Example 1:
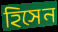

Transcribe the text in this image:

হিসেন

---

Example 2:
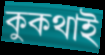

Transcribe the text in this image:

কুকথাই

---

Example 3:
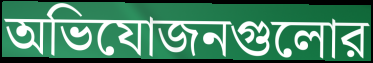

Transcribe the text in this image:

অভিযোজনগুলোর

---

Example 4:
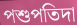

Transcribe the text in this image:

পশুপতিদা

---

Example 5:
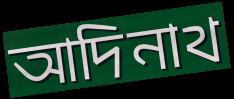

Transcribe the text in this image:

আদিনাথ